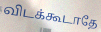
விடக்கூடாதே